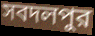
সবদলপুর